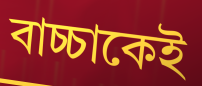
বাচ্চাকেই